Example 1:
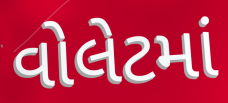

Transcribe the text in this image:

વોલેટમાં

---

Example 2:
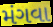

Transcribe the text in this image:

મંગવા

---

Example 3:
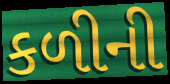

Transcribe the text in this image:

કળીની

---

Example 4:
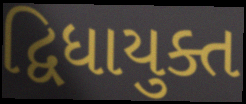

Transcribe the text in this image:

દ્વિધાયુક્ત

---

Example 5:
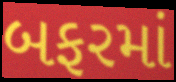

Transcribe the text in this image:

બફરમાં